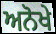
ਅਨੋਖੇ